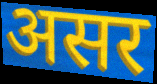
असर